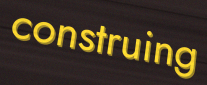
construing